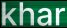
khar